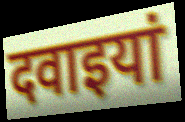
दवाइयां